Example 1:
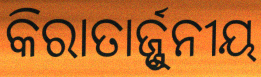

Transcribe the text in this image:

କିରାତାର୍ଜ୍ଜୁନୀୟ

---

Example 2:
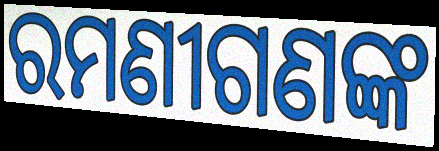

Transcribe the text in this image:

ରମଣୀଗଣଙ୍କ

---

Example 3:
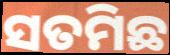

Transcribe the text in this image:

ସତମିଛ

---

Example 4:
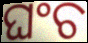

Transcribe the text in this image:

ଘଂଚ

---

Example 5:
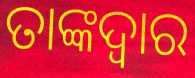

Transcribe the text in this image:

ତାଙ୍କଦ୍ୱାର